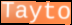
Tayto